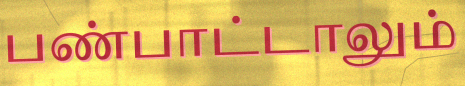
பண்பாட்டாலும்